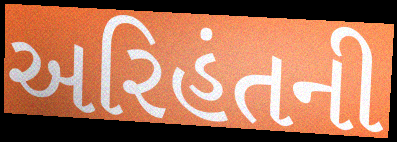
અરિહંતની